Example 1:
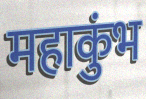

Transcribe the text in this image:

महाकुंभ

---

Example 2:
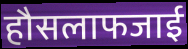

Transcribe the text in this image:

हौसलाफजाई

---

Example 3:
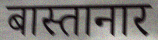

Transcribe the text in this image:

बास्तानार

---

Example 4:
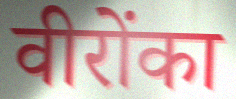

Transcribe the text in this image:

वीरोंका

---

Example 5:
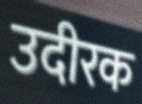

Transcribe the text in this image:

उदीरक